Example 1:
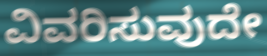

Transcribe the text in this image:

ವಿವರಿಸುವುದೇ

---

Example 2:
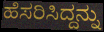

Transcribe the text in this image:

ಹೆಸರಿಸಿದ್ದನ್ನು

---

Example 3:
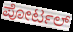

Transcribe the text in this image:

ಪೋರ್ಟಲ್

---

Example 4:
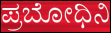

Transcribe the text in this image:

ಪ್ರಬೋಧಿನಿ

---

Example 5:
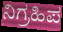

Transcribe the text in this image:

ನಿಗ್ರಹಿಪ